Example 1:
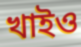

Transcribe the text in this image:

খাইও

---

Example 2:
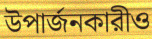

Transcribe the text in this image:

উপার্জনকারীও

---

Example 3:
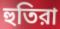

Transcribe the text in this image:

হুতিরা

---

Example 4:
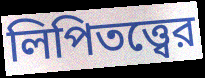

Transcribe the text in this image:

লিপিতত্ত্বের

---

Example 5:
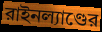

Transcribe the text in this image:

রাইনল্যাণ্ডের